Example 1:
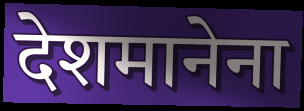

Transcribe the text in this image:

देशमानेना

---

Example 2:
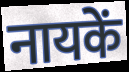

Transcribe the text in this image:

नायकें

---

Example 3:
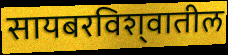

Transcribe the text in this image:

सायबरविश्वातील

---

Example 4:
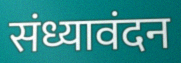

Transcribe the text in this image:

संध्यावंदन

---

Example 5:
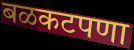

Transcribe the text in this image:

बळकटपणा